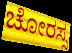
ಚೋರಸ್ಸ